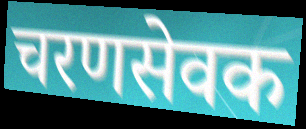
चरणसेवक